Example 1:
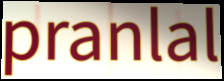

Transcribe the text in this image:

pranlal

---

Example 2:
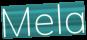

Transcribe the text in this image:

Mela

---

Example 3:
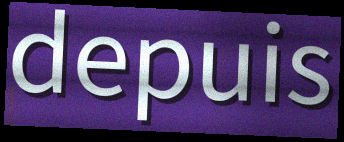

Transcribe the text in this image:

depuis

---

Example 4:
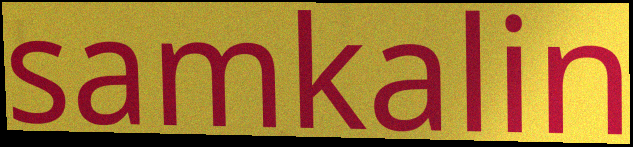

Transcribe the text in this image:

samkalin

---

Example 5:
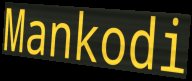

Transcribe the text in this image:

Mankodi